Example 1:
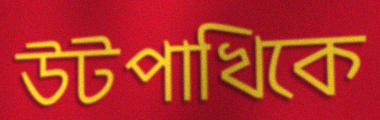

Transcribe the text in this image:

উটপাখিকে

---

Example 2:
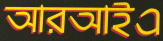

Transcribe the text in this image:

আরআইএ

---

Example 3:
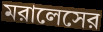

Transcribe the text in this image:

মরালেসের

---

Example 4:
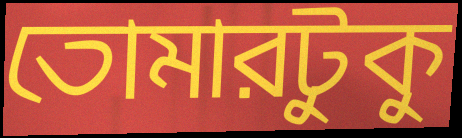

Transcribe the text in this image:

তোমারটুকু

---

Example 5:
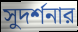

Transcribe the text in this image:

সুদর্শনার